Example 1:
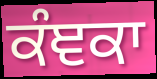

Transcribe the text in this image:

ਕੰਞਕਾ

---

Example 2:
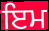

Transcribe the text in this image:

ਇਮ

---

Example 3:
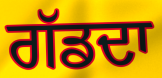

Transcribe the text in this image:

ਗੱਡਦਾ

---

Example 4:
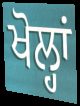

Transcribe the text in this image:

ਖੋਲ੍ਹਾਂ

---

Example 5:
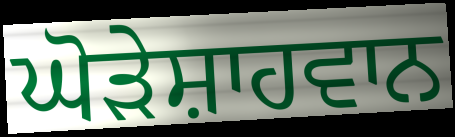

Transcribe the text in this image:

ਘੋੜੇਸ਼ਾਹਵਾਨ